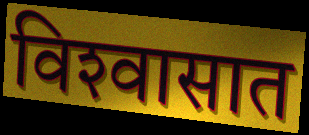
विश्वासात